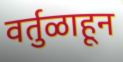
वर्तुळाहून